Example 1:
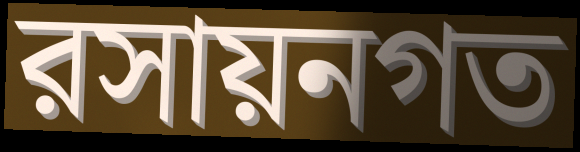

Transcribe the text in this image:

রসায়নগত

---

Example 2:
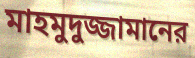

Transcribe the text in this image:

মাহমুদুজ্জামানের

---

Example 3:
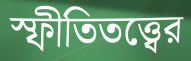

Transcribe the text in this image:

স্ফীতিতত্ত্বের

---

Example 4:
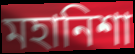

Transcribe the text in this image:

মহানিশা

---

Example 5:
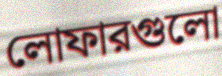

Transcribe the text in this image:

লোফারগুলো